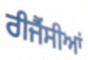
ਰੀਜੈਂਸੀਆਂ